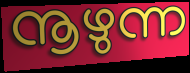
നൂഴുന്ന